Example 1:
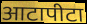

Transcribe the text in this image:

आटापीटा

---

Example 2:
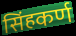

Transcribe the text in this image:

सिंहकर्ण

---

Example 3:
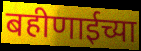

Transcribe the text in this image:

बहीणाईच्या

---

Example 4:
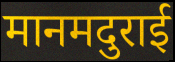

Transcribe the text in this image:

मानमदुराई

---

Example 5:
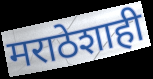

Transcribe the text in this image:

मराठेशाही